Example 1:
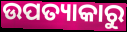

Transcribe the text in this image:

ଉପତ୍ୟାକାରୁ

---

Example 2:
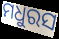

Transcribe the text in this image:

ମଧୁରସ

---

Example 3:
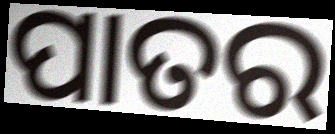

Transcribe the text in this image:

ପାତର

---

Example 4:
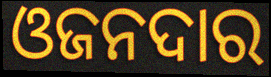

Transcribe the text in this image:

ଓଜନଦାର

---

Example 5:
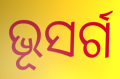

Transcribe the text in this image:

ଭୂସର୍ଗ